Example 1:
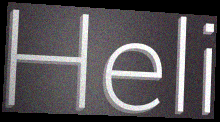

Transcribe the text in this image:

Heli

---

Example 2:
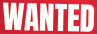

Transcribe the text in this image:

WANTED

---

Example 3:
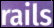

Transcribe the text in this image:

rails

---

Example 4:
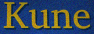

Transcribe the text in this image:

Kune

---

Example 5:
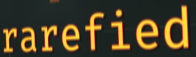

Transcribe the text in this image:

rarefied